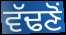
ਵੱਢਣੋਂ